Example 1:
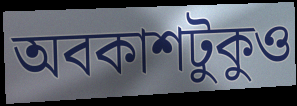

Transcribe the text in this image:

অবকাশটুকুও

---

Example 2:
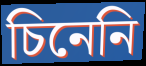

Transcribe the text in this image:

চিনেনি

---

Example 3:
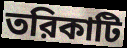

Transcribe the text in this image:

তরিকাটি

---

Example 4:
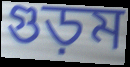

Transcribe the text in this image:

গুড়ম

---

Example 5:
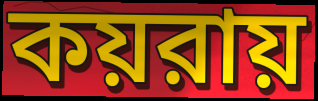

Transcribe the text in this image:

কয়রায়